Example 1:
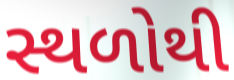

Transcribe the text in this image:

સ્થળોથી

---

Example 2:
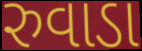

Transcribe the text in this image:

રુવાડા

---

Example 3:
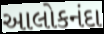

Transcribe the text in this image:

આલોકનંદા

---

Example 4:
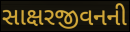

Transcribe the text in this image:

સાક્ષરજીવનની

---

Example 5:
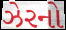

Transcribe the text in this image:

ઝેરનો